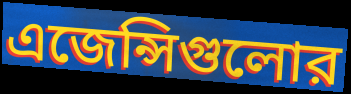
এজেন্সিগুলোর